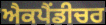
ਐਕਪੈਂਡੀਚਰ